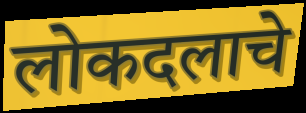
लोकदलाचे